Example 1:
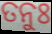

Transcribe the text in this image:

ତନୁଃ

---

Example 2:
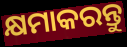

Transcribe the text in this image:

କ୍ଷମାକରନ୍ତୁ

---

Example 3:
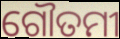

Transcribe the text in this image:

ଗୌତମୀ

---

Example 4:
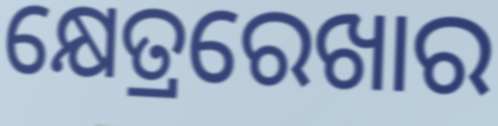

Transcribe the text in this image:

କ୍ଷେତ୍ରରେଖାର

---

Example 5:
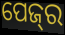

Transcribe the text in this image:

ପେଜ୍‌ର